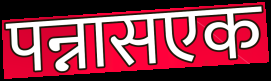
पन्नासएक